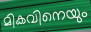
മികവിനെയും